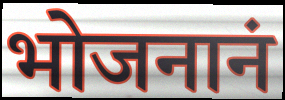
भोजनानं